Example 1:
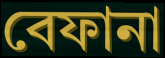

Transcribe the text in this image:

বেফানা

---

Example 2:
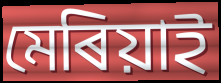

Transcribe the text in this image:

মেৰিয়াই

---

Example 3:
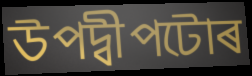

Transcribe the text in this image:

উপদ্বীপটোৰ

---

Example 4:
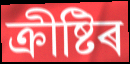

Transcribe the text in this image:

ক্ৰীষ্টিৰ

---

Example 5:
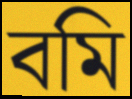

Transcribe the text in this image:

বমি